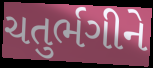
ચતુર્ભગીને